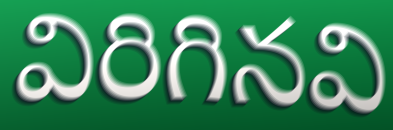
విరిగినవి